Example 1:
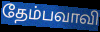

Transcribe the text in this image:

தேம்பவாவி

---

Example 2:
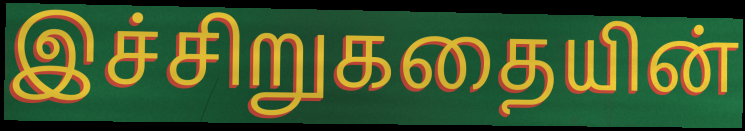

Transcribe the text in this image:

இச்சிறுகதையின்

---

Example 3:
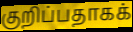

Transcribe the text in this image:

குறிப்பதாகக்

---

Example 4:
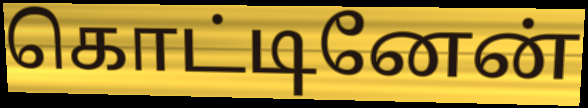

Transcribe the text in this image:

கொட்டினேன்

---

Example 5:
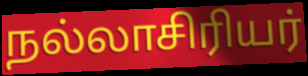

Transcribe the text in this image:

நல்லாசிரியர்